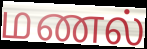
மணல்